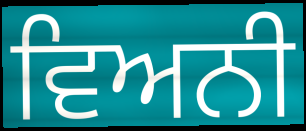
ਵਿਅਨੀ